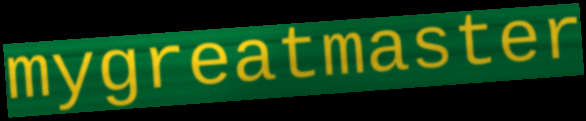
mygreatmaster